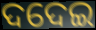
ଦଦେଇ